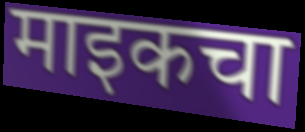
माइकचा